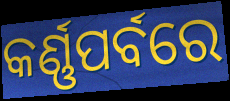
କର୍ଣ୍ଣପର୍ବରେ